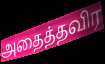
அதைத்தவிர